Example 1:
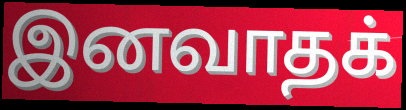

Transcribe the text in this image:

இனவாதக்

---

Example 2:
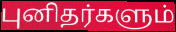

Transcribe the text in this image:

புனிதர்களும்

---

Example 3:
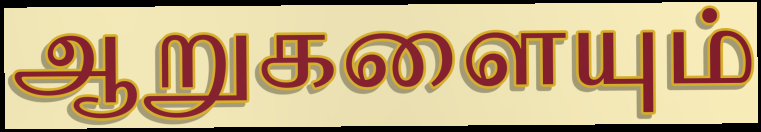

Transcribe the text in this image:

ஆறுகளையும்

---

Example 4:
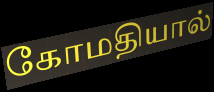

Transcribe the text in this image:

கோமதியால்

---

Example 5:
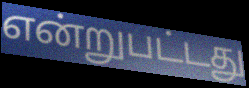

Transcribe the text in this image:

என்றுபட்டது